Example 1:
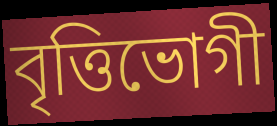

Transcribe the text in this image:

বৃত্তিভোগী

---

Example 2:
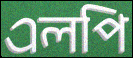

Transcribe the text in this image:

এলপি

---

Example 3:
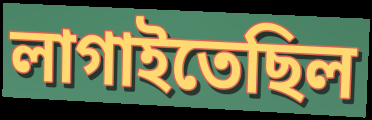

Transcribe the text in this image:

লাগাইতেছিল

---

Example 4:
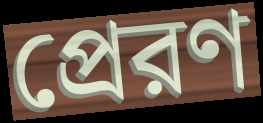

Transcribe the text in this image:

প্রেরণ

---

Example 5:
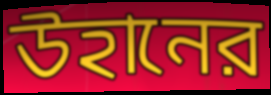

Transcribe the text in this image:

উহানের